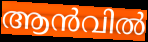
ആൻവിൽ